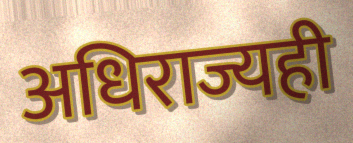
अधिराज्यही